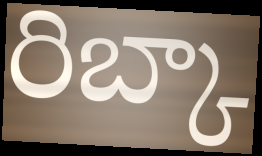
రిబ్కా